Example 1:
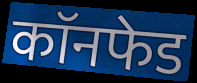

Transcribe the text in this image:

कॉनफेड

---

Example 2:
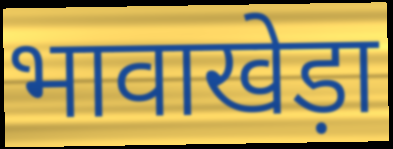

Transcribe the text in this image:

भावाखेड़ा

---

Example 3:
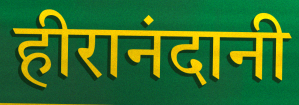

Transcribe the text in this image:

हीरानंदानी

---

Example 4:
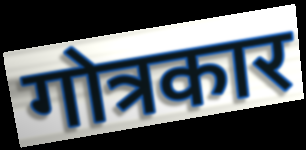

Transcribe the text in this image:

गोत्रकार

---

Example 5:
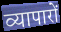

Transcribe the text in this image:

व्यापारों